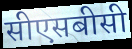
सीएसबीसी